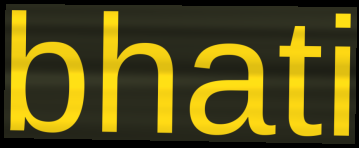
bhati